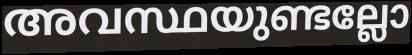
അവസ്ഥയുണ്ടല്ലോ